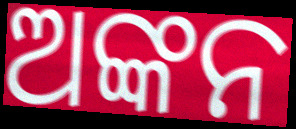
ଅଙ୍କନ